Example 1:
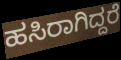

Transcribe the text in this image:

ಹಸಿರಾಗಿದ್ದರೆ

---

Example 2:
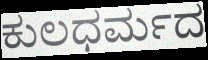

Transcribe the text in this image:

ಕುಲಧರ್ಮದ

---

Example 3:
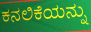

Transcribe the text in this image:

ಕನಲಿಕೆಯನ್ನು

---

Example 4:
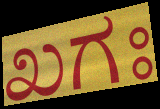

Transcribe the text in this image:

ಖಗಃ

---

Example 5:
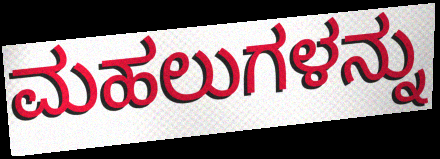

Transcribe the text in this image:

ಮಹಲುಗಳನ್ನು